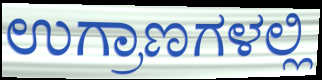
ಉಗ್ರಾಣಗಳಲ್ಲಿ